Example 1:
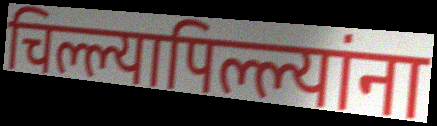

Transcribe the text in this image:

चिल्ल्यापिल्ल्यांना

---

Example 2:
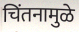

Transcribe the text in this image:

चिंतनामुळे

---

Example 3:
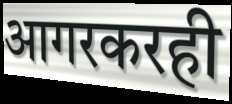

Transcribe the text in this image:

आगरकरही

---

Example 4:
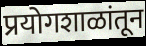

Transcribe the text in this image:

प्रयोगशाळांतून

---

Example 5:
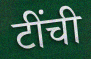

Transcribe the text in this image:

टींची